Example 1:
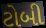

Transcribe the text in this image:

ટોબી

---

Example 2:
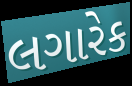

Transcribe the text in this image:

લગારેક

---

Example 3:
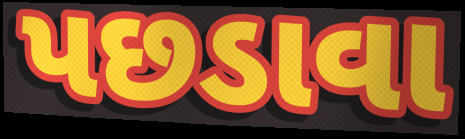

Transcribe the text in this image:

પછડાવા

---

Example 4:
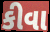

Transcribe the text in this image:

કીવા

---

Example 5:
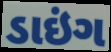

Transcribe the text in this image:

ડાઇંગ